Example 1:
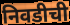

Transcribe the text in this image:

निवडीची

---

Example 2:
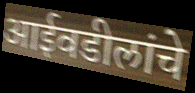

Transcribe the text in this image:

आईवडीलांचे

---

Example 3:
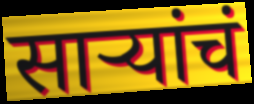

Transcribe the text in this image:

साऱ्यांचं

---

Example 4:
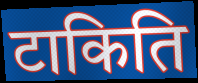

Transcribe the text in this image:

टाकिति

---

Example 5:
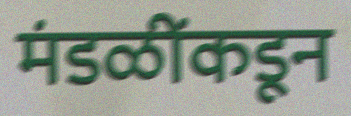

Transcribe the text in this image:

मंडळींकडून